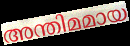
അന്തിമമായ